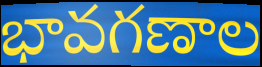
భావగణాల